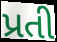
પ્રતી